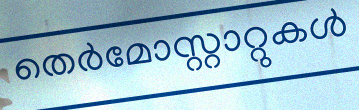
തെർമോസ്റ്റാറ്റുകൾ